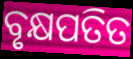
ବୃକ୍ଷପତିତ